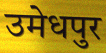
उमेधपुर